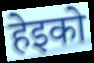
हेइको